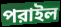
পরাইল